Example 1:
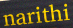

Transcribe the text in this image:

narithi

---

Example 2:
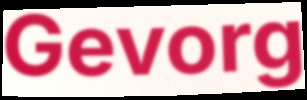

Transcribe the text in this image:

Gevorg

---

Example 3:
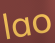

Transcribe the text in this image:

lao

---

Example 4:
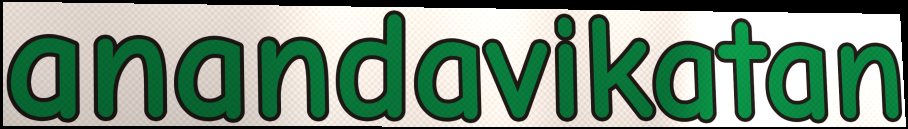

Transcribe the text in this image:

anandavikatan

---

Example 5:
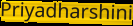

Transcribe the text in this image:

Priyadharshini